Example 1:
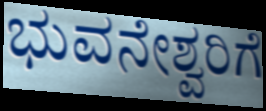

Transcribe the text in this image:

ಭುವನೇಶ್ವರಿಗೆ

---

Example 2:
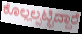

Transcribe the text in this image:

ಕೊಲ್ಲಲ್ಪಟ್ಟಿದ್ದಾರೆ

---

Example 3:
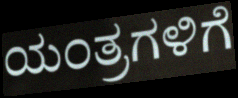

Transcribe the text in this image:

ಯಂತ್ರಗಳಿಗೆ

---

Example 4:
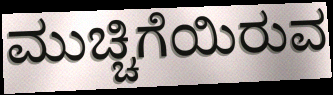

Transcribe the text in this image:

ಮುಚ್ಚಿಗೆಯಿರುವ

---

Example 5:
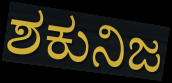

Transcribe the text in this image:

ಶಕುನಿಜ